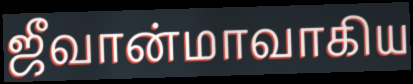
ஜீவான்மாவாகிய